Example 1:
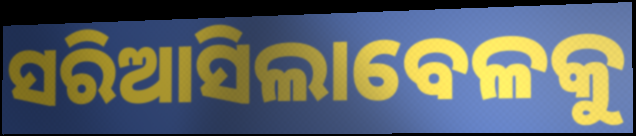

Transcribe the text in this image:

ସରିଆସିଲାବେଳକୁ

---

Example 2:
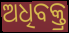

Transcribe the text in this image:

ଅଧିବକ୍ତ୍ର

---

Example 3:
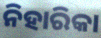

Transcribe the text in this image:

ନିହାରିକା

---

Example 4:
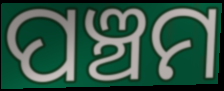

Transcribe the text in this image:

ପଞ୍ଚମ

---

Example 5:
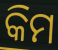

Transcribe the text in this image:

କିମ